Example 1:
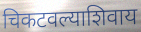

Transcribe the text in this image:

चिकटवल्याशिवाय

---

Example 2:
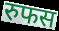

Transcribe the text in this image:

रुफस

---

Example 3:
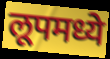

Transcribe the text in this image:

लूपमध्ये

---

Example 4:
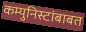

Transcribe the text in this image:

कम्युनिस्टांबाबत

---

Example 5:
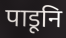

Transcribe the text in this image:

पाडूनि